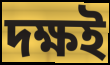
দক্ষই